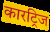
कारट्रिज